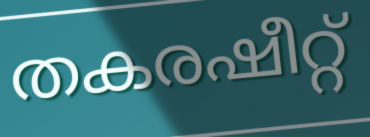
തകരഷീറ്റ്